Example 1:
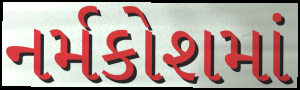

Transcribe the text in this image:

નર્મકોશમાં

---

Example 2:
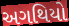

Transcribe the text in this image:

અગથિયો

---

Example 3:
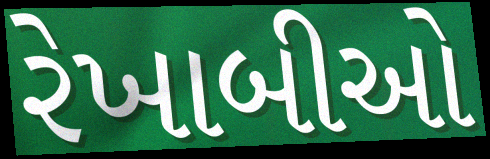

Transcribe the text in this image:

રેખાબીઓ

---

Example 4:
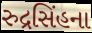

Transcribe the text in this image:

રુદ્રસિંહના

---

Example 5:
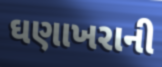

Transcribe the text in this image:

ઘણાખરાની